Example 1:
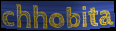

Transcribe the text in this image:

chhobita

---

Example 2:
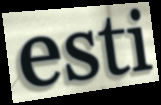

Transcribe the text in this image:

esti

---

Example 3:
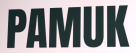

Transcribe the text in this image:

PAMUK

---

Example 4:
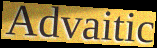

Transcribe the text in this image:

Advaitic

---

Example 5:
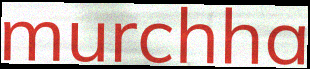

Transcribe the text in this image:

murchha